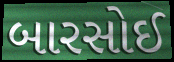
બારસોઈ